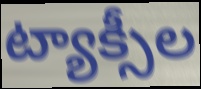
ట్యాక్సీల